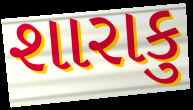
શારાકુ